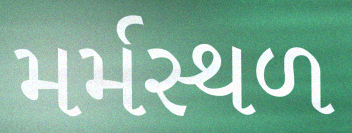
મર્મસ્થળ